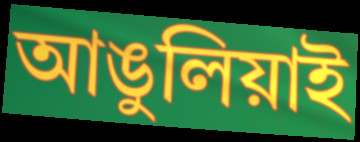
আঙুলিয়াই